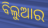
ବିଲୁଆର